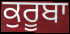
ਕੁਰੂਬਾ